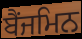
ਬੈਂਜਮਿਨ